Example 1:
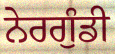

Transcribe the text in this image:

ਨੇਰਗੁੰਡੀ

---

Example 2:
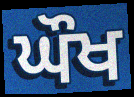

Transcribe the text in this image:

ਘੌਖ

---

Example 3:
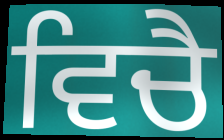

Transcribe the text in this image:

ਵਿਚੈ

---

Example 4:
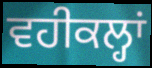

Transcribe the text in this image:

ਵਹੀਕਲ੍ਹਾਂ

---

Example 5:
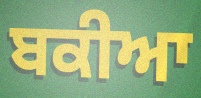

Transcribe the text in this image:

ਬਕੀਆ